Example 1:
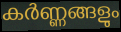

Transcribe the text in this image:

കർണ്ണങ്ങളും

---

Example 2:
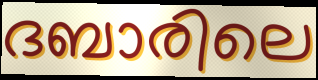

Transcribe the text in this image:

ദബാരിലെ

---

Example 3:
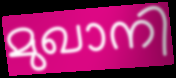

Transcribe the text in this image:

മുഖാനി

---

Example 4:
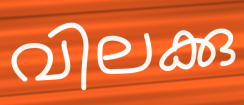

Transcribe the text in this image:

വിലക്കു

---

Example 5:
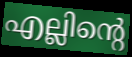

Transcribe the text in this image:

എല്ലിന്റെ